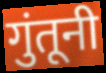
गुंतूनी